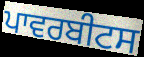
ਪਾਵਰਬੀਟਸ